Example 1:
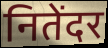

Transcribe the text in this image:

नितेंदर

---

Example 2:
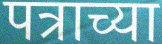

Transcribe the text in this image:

पत्राच्या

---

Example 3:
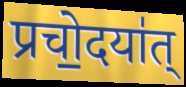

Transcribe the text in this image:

प्रचो॒दया॑त्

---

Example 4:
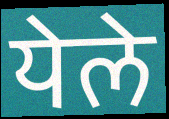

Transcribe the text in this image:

येले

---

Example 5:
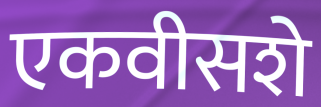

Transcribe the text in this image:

एकवीसशे